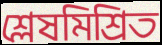
শ্লেষমিশ্রিত